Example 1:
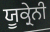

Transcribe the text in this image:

ਯੂਕ੍ਰੇਨੀ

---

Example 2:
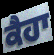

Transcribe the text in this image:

ਕੈਹਾ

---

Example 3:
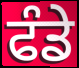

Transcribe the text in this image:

ਫੰਡੇ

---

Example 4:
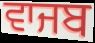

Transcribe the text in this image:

ਵਾਜਬ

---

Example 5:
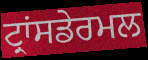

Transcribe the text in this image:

ਟ੍ਰਾਂਸਡੇਰਮਲ